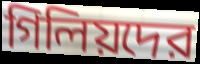
গিলিয়দের